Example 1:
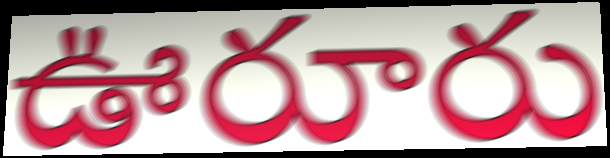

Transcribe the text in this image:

ఊరూరు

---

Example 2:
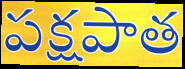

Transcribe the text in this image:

పక్షపాత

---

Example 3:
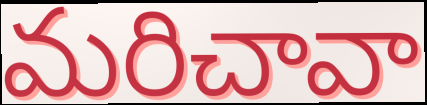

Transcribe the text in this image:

మరిచావా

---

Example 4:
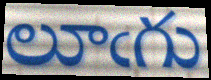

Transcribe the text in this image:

లూఁగు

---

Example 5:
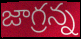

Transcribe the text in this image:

జాగ్రన్న